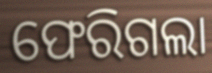
ଫେରିଗଲା